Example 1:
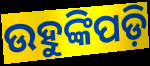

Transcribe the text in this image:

ଉହୁଙ୍କିପଡ଼ି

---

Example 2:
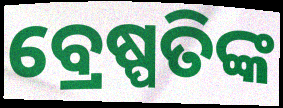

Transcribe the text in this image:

ବ୍ରେଷ୍ପତିଙ୍କ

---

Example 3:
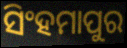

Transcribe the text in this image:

ସିଂହମାପୁର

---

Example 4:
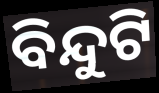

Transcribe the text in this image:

ବିନ୍ଦୁଟି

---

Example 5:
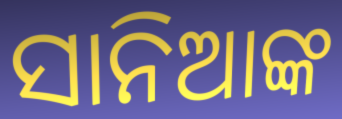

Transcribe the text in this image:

ସାନିଆଙ୍କ